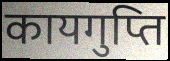
कायगुप्ति